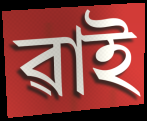
ৱাই